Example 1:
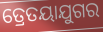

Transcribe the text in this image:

ତ୍ରେତୟାଯୁଗର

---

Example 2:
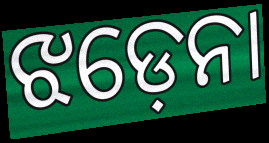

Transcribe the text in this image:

ଝଡ଼େନା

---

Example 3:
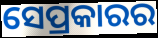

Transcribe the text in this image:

ସେପ୍ରକାରର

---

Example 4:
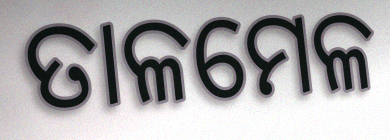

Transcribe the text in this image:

ତାଳମେଳ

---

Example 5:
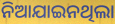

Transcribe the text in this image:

ନିଆଯାଇନଥିଲା